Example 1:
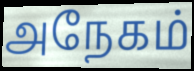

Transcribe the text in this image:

அநேகம்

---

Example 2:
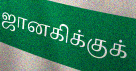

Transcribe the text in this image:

ஜானகிக்குக்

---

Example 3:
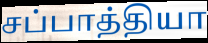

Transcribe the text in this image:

சப்பாத்தியா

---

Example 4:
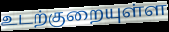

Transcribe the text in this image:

உடற்குறையுள்ள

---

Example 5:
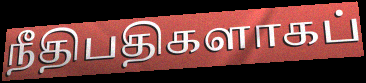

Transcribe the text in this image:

நீதிபதிகளாகப்